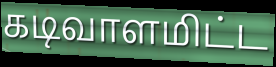
கடிவாளமிட்ட